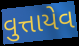
વુત્તાયેવ